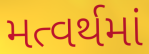
મત્વર્થમાં